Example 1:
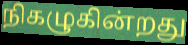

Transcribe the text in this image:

நிகழுகின்றது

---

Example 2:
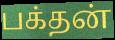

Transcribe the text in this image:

பக்தன்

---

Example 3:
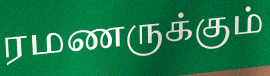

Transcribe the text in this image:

ரமணருக்கும்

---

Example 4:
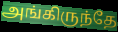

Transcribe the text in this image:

அங்கிருந்தே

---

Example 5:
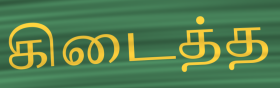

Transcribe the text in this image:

கிடைத்த